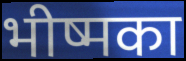
भीष्मका